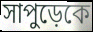
সাপুড়েকে